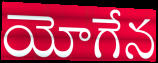
యోగేన